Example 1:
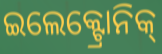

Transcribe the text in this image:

ଇଲେକ୍ଟ୍ରୋନିକ୍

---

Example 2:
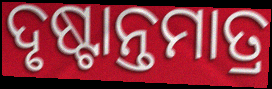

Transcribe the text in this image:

ଦୃଷ୍ଟାନ୍ତମାତ୍ର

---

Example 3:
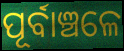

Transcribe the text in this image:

ପୂର୍ବାଞ୍ଚଳେ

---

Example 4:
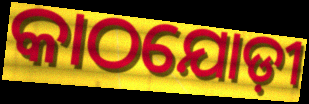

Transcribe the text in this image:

କାଠଯୋଡ଼ୀ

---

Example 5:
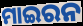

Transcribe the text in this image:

ମାଇରନ